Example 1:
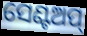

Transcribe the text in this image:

ସେଣ୍ଟଅପ୍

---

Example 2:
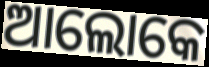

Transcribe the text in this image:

ଆଲୋକେ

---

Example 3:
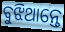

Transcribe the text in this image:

ବୁଝିଥାନ୍ତେ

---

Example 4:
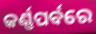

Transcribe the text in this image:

କର୍ଣ୍ଣପର୍ବରେ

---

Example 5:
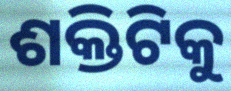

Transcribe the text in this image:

ଶକ୍ତିଟିକୁ